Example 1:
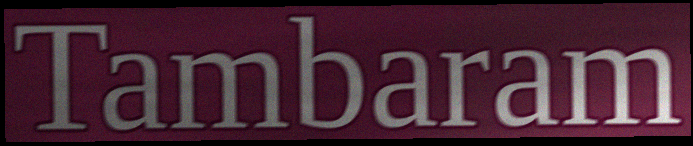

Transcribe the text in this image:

Tambaram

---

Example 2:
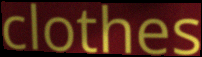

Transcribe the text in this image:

clothes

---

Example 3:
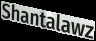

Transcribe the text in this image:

Shantalawz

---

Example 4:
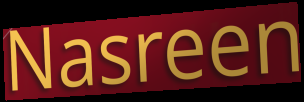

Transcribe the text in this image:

Nasreen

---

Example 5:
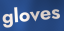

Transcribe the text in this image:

gloves